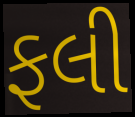
ફલી